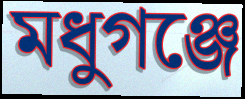
মধুগঞ্জে